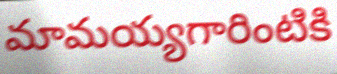
మామయ్యగారింటికి